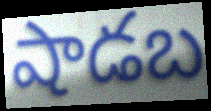
షాడబ